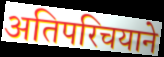
अतिपरिचयाने